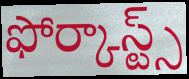
ఫోర్కాస్ట్స్